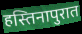
हस्तिनापुरात